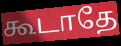
கூடாதே